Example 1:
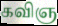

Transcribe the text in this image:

கவிஞ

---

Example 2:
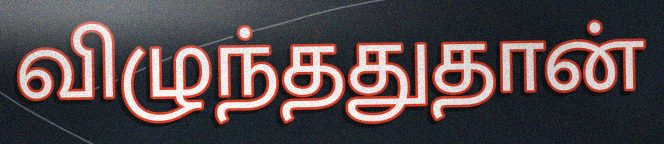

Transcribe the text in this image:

விழுந்ததுதான்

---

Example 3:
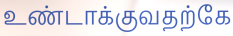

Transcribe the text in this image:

உண்டாக்குவதற்கே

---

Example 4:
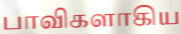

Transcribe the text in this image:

பாவிகளாகிய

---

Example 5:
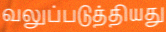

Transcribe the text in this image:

வலுப்படுத்தியது